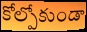
కోల్పోకుండా